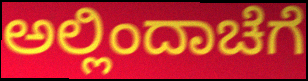
ಅಲ್ಲಿಂದಾಚೆಗೆ